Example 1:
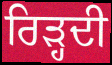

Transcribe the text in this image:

ਰਿੜ੍ਹਦੀ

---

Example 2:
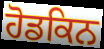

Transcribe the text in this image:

ਹੋਡਕਿਨ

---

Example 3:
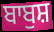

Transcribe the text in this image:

ਬਾਬੁਸ਼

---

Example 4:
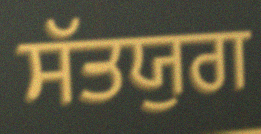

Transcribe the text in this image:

ਸੱਤਯੁਗ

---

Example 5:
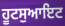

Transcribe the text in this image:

ਹੂਟਸੁਆਇਟ